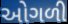
ઓગળી